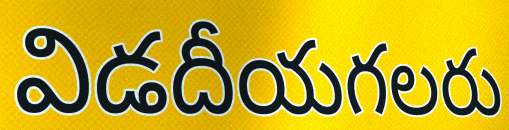
విడదీయగలరు